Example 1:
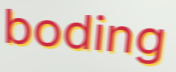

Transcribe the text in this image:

boding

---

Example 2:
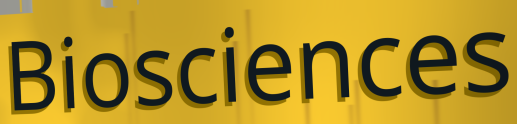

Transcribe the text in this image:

Biosciences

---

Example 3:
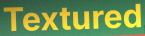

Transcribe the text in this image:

Textured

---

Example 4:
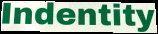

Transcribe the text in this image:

Indentity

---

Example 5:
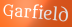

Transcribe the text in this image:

Garfield